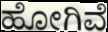
ಹೋಗಿವೆ